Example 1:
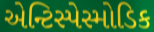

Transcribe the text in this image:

એન્ટિસ્પેસ્મોડિક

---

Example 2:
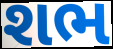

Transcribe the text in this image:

શભ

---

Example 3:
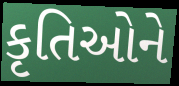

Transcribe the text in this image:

કૃતિઓને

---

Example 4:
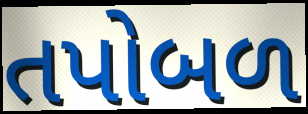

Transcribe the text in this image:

તપોબળ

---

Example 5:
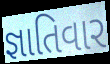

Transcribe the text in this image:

જ્ઞાતિવાર